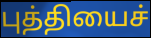
புத்தியைச்